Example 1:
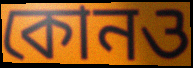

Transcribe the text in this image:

কোনও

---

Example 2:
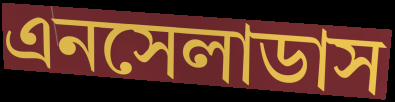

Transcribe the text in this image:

এনসেলাডাস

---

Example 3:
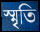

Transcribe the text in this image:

স্মৃতি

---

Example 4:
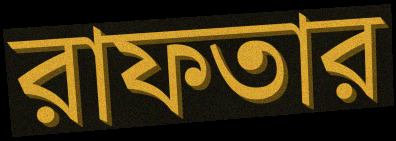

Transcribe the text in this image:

রাফতার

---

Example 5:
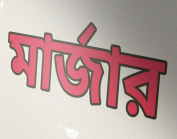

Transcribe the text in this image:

মার্জার